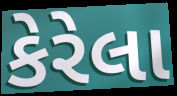
કેરેલા